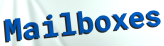
Mailboxes